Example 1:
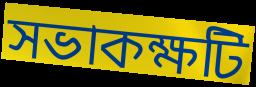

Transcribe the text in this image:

সভাকক্ষটি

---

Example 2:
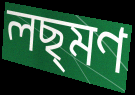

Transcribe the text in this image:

লছ্মণ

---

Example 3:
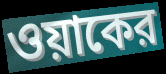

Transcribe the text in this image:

ওয়াকের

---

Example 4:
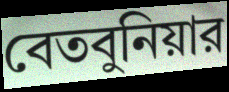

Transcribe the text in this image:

বেতবুনিয়ার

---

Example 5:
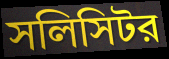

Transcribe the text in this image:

সলিসিটর